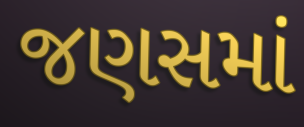
જણસમાં